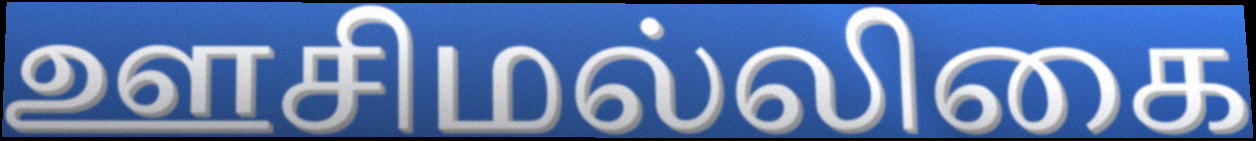
ஊசிமல்லிகை